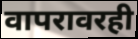
वापरावरही